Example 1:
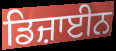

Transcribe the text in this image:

ਡਿਜ਼ਾਈਨ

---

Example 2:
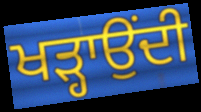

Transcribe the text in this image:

ਖੜ੍ਹਾਉਂਦੀ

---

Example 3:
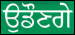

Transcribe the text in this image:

ਉਡੌਣਗੇ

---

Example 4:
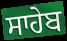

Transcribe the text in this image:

ਸਾਹੇਬ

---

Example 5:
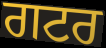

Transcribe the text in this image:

ਗਟਰ